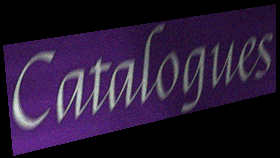
Catalogues